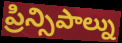
ప్రిన్సిపాల్ను